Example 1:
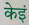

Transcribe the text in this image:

केइं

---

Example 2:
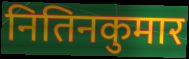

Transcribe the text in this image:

नितिनकुमार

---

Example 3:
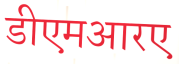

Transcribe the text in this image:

डीएमआरए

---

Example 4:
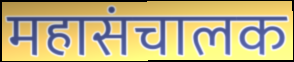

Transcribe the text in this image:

महासंचालक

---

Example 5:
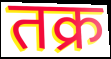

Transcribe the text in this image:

तक्र